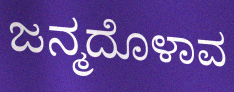
ಜನ್ಮದೊಳಾವ